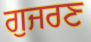
ਗੁਜਰਣ